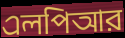
এলপিআর